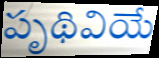
పృథివియే